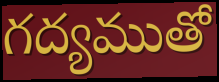
గద్యముతో